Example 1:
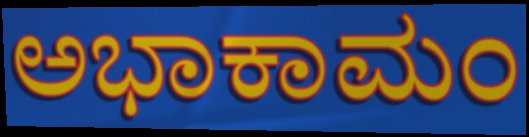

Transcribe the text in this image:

ಅಭಾಕಾಮಂ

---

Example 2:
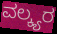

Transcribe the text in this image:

ವಲ್ಕ್ಯರ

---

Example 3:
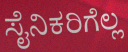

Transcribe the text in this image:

ಸೈನಿಕರಿಗೆಲ್ಲ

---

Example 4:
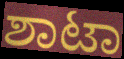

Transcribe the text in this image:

ಶಾಟಾ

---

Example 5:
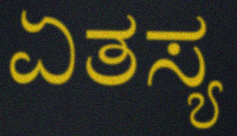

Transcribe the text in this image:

ಏತಸ್ಯ